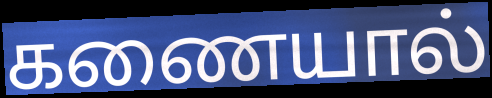
கணையால்